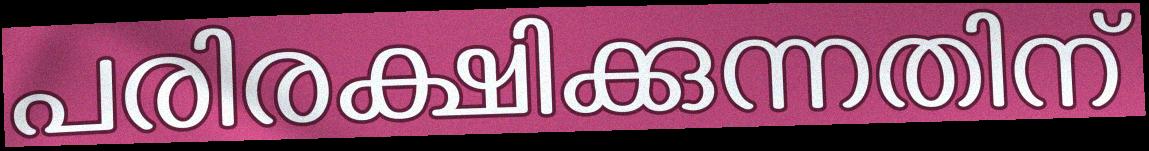
പരിരക്ഷിക്കുന്നതിന്